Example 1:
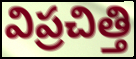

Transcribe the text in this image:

విప్రచిత్తి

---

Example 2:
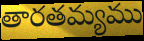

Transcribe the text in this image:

తారతమ్యము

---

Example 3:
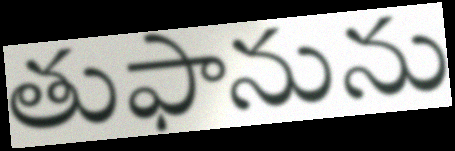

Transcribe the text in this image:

తుఫానును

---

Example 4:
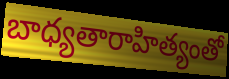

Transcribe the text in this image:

బాధ్యతారాహిత్యంతో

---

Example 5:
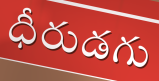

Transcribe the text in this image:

ధీరుడగు